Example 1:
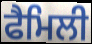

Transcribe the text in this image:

ਫੈਮਿਲੀ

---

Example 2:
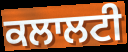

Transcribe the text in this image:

ਕਲਾਲਟੀ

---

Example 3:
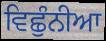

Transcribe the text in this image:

ਵਿਛੁੰਨੀਆ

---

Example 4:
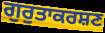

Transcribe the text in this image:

ਗੁਰੁਤਾਕਰਸ਼ਣ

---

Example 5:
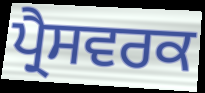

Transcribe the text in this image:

ਪ੍ਰੈਸਵਰਕ